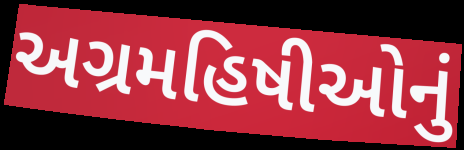
અગ્રમહિષીઓનું